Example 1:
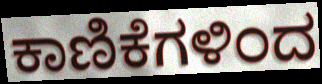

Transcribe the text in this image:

ಕಾಣಿಕೆಗಳಿಂದ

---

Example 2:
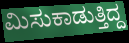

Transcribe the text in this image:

ಮಿಸುಕಾಡುತ್ತಿದ್ದ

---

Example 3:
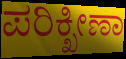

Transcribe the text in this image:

ಪರಿಕ್ಖೀಣಾ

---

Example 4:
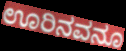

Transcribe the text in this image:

ಊರಿನವನೂ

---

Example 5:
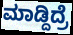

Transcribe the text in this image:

ಮಾಡ್ದಿದ್ರೆ